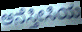
ಅನೆಸ್ತೀಸಿಯ